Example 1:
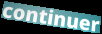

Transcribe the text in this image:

continuer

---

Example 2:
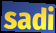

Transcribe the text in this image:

sadi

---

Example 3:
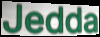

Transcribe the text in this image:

Jedda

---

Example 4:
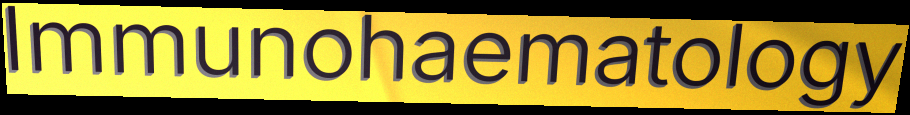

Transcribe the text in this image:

Immunohaematology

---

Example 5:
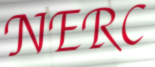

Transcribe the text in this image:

NERC